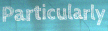
Particularly